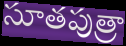
సూతపుత్రా